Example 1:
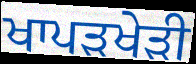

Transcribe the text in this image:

ਖਾਪੜਖੇੜੀ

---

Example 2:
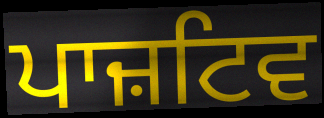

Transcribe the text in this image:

ਪਾਜ਼ਟਿਵ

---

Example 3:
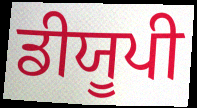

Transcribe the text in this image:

ਡੀਯੂਪੀ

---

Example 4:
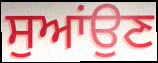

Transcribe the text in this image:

ਸੁਆਂਉਣ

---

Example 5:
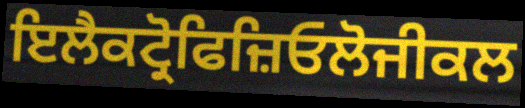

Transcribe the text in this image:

ਇਲੈਕਟ੍ਰੋਫਿਜ਼ਿਓਲੋਜੀਕਲ